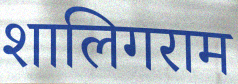
शालिगराम